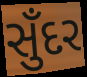
સુઁદર